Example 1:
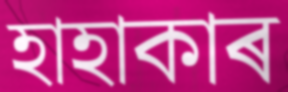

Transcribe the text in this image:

হাহাকাৰ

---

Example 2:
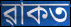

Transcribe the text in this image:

ৱাকত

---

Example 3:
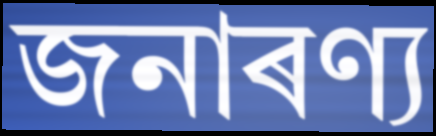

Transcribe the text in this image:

জনাৰণ্য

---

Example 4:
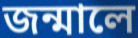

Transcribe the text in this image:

জন্মালে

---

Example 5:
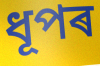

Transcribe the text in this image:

ধূপৰ